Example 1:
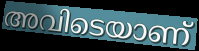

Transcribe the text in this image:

അവിടെയാണ്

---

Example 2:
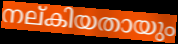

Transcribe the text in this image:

നല്കിയതായും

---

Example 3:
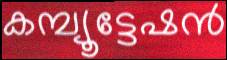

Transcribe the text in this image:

കമ്പ്യൂട്ടേഷൻ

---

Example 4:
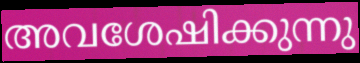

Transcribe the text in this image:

അവശേഷിക്കുന്നു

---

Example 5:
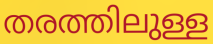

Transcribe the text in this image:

തരത്തിലുള്ള